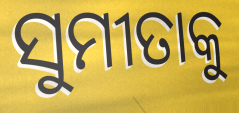
ସୁମୀତାକୁ